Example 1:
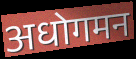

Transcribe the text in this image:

अधोगमन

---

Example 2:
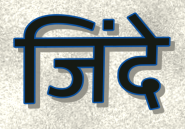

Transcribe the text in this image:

जिंदे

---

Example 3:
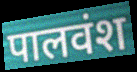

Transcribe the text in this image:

पालवंश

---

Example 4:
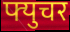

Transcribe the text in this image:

फ्युचर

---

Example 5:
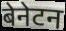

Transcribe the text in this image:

बेनेटन